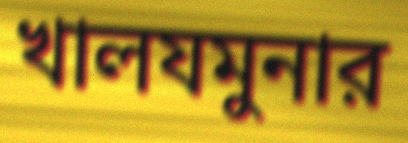
খালযমুনার